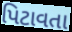
પિટાવતા